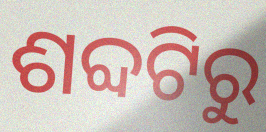
ଶବ୍ଦଟିରୁ